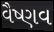
વૈષ્ણવ